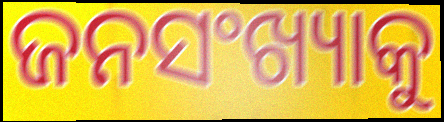
ଜନସଂଖ୍ୟାକୁ